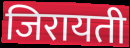
जिरायती